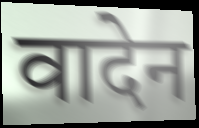
वादेन